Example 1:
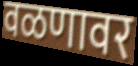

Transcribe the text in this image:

वळणावर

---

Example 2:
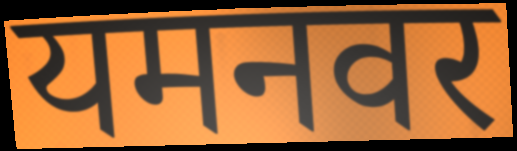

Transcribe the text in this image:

यमनवर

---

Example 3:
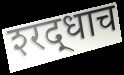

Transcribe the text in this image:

श्रद्धाच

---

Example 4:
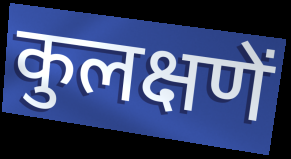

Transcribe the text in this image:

कुलक्षणें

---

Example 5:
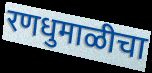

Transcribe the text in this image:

रणधुमाळीचा